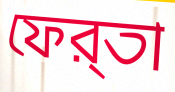
ফের্‌তা